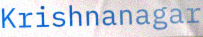
Krishnanagar